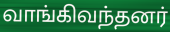
வாங்கிவந்தனர்